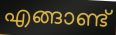
എങ്ങാണ്ട്